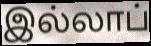
இல்லாப்